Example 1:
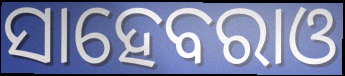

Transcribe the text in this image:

ସାହେବରାଓ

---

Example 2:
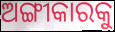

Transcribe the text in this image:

ଅଙ୍ଗୀକାରକୁ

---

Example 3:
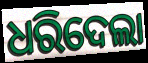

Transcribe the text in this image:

ଧରିଦେଲା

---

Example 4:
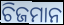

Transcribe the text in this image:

ଚିଜମାନ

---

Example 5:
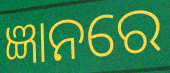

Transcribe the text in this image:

ଜ୍ଞାନରେ